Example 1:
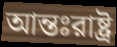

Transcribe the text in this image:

আন্তঃরাষ্ট্র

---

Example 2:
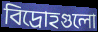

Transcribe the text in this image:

বিদ্রোহগুলো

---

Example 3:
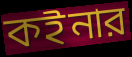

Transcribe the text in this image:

কইনার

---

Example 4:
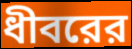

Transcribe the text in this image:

ধীবরের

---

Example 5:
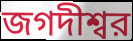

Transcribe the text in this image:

জগদীশ্বর